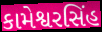
કામેશ્વરસિંહ